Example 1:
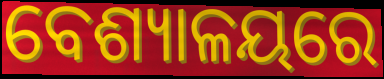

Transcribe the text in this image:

ବେଶ୍ୟାଳୟରେ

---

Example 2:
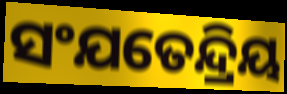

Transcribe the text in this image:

ସଂଯତେନ୍ଦ୍ରିୟ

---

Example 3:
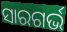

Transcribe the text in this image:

ସାରଗର୍ଭ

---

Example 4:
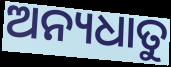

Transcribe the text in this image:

ଅନ୍ୟଧାତୁ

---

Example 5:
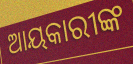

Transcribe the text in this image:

ଆୟକାରୀଙ୍କ